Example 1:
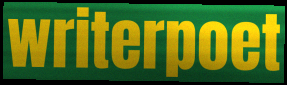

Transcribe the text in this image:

writerpoet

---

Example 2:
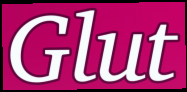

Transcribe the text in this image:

Glut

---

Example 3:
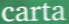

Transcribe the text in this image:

carta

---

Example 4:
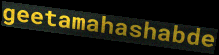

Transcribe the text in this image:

geetamahashabde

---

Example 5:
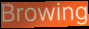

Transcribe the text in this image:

Browing